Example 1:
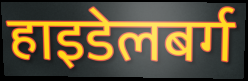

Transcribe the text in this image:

हाइडेलबर्ग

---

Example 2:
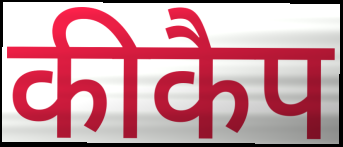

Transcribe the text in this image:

कीकैप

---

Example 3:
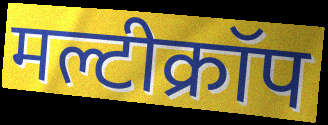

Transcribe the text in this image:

मल्टीक्रॉप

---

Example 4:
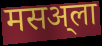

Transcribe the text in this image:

मसअ्ला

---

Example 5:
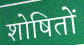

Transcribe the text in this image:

शोषितों